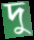
দু